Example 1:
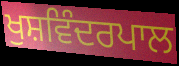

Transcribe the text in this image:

ਖੁਸ਼ਵਿੰਦਰਪਾਲ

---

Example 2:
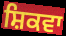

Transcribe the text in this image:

ਸ਼ਿਕਵਾ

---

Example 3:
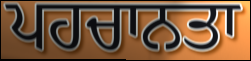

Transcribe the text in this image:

ਪਹਚਾਨਤਾ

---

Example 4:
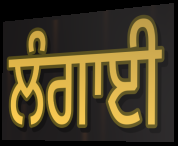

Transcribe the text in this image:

ਲੰਗਾਈ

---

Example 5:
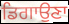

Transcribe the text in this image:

ਡਿਗਾਉਣਾ